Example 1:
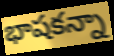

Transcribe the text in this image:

భాషకన్నా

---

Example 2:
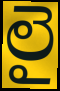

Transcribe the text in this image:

లై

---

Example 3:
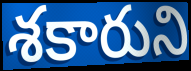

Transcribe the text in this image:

శకారుని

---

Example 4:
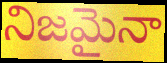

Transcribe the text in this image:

నిజమైనా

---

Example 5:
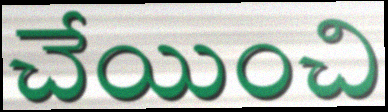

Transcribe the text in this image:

చేయించి